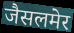
जैसलमेर